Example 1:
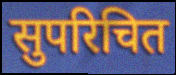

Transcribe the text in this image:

सुपरिचित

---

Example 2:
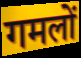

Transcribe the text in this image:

गमलों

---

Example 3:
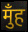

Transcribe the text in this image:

मुँह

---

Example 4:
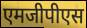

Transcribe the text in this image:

एमजीपीएस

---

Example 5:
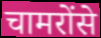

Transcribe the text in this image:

चामरोंसे